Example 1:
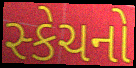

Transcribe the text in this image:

સ્કેચનો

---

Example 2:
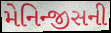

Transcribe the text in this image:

મેનિન્જીસની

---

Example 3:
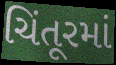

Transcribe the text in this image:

ચિંતૂરમાં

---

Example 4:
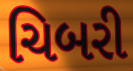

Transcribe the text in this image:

ચિબરી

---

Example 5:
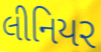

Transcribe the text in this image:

લીનિયર